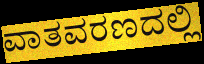
ವಾತವರಣದಲ್ಲಿ